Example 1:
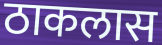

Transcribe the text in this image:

ठाकलास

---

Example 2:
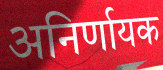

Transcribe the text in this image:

अनिर्णायक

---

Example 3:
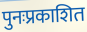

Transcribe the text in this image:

पुनःप्रकाशित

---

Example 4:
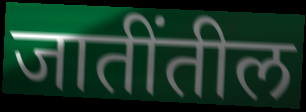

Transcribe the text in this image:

जातींतील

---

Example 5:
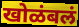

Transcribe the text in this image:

खोळंबलं